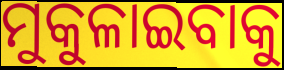
ମୁକୁଳାଇବାକୁ